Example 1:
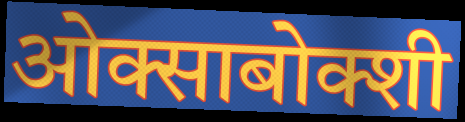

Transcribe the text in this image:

ओक्साबोक्शी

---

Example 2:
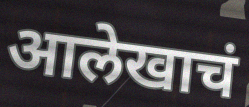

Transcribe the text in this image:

आलेखाचं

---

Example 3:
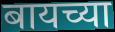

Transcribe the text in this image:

बायच्या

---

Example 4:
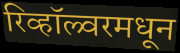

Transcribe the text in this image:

रिव्हॉल्वरमधून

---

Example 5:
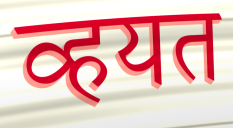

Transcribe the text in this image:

व्हयत